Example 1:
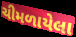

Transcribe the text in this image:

ચીમળાયેલા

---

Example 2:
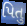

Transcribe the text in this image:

પિતુ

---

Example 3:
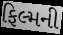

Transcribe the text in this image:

ફિલ્મની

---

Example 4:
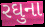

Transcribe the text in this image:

રઘુના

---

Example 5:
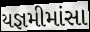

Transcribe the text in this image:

યજ્ઞમીમાંસા